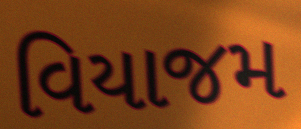
વિયાજમ